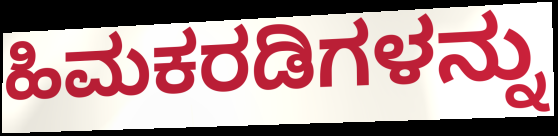
ಹಿಮಕರಡಿಗಳನ್ನು